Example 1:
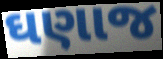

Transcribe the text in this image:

ઘણાજ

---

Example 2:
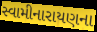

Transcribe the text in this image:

સ્વામીનારાયણના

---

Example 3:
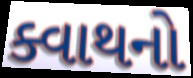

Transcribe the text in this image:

ક્વાથનો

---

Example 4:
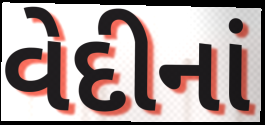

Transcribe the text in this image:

વેદીનાં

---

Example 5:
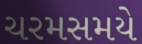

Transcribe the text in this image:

ચરમસમયે